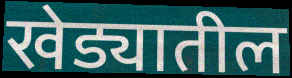
खेड्यातील